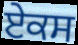
ਏਕਸ